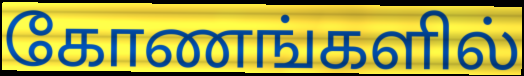
கோணங்களில்